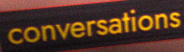
conversations